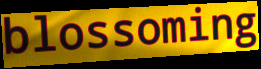
blossoming